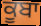
ਕੂਬਾ